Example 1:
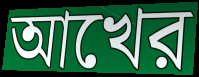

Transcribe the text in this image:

আখের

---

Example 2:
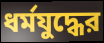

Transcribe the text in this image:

ধর্মযুদ্ধের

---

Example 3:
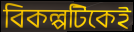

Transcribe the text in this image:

বিকল্পটিকেই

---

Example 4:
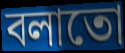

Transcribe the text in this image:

বলাতো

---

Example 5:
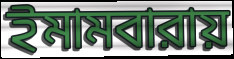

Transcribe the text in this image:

ইমামবারায়